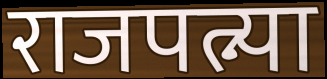
राजपत्न्या